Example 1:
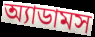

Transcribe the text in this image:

অ্যাডামস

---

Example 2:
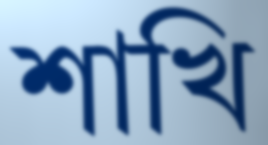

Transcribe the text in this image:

শাখি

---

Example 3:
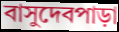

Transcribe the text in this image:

বাসুদেবপাড়া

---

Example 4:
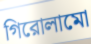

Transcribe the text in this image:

গিরোলামো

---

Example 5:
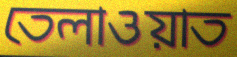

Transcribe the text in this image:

তেলাওয়াত